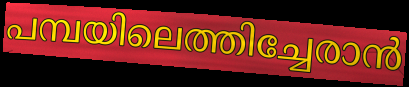
പമ്പയിലെത്തിച്ചേരാൻ